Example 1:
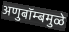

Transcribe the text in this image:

अणुबॉम्बमुळे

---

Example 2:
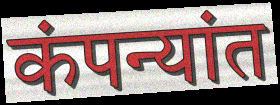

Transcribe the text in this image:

कंपन्यांत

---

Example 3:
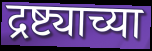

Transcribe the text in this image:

द्रष्ट्याच्या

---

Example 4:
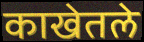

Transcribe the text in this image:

काखेतले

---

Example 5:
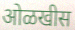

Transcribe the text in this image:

ओळखीस